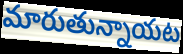
మారుతున్నాయట